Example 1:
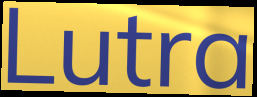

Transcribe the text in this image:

Lutra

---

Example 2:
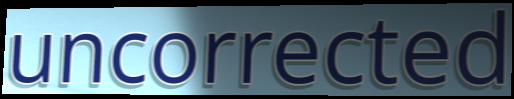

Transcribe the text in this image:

uncorrected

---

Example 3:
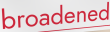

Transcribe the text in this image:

broadened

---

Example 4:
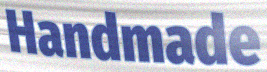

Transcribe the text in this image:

Handmade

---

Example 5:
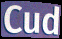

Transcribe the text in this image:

Cud